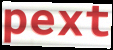
pext